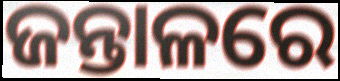
ଜନ୍ତାଳରେ